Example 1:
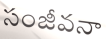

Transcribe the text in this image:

సంజీవనా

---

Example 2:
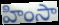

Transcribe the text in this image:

హింసా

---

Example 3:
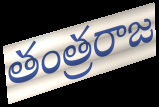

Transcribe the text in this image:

తంత్రరాజ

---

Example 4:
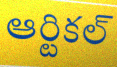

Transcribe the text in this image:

ఆర్టికల్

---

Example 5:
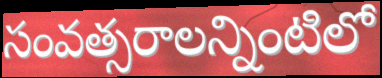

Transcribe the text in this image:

సంవత్సరాలన్నింటిలో